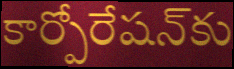
కార్పోరేషన్‌కు